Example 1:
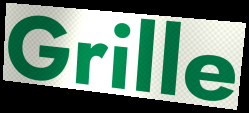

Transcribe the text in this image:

Grille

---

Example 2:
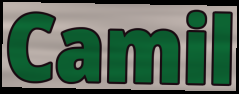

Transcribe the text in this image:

Camil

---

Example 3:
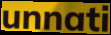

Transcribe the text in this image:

unnati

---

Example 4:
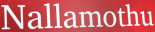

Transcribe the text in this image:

Nallamothu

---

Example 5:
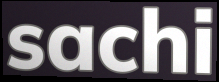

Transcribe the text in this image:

sachi